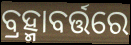
ବ୍ରହ୍ମାବର୍ତ୍ତରେ